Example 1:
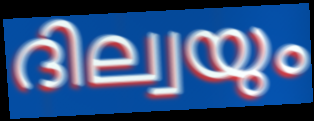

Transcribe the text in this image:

ദില്വയും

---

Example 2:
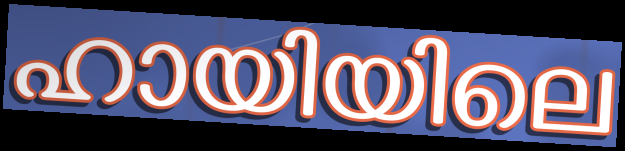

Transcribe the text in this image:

ഹായിയിലെ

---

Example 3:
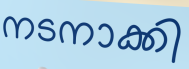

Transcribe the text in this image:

നടനാക്കി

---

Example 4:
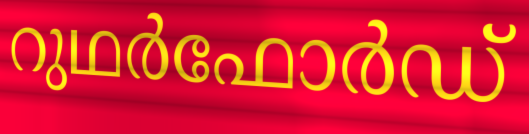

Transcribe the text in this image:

റുഥർഫോർഡ്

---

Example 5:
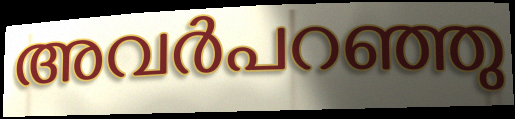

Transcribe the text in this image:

അവർപറഞ്ഞു